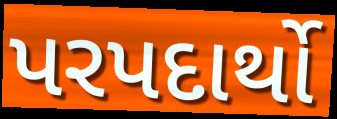
પરપદાર્થો